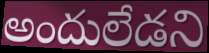
అందులేడని